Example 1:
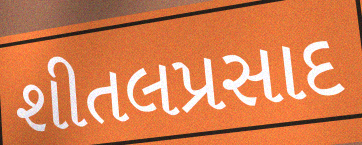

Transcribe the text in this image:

શીતલપ્રસાદ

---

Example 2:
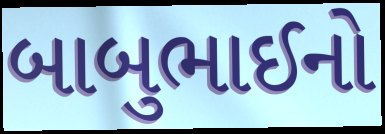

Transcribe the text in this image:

બાબુભાઈનો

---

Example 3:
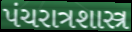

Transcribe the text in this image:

પંચરાત્રશાસ્ત્ર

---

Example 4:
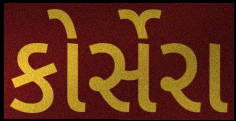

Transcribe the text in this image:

કોર્સેરા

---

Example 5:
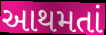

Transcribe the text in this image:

આથમતાં